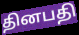
தினபதி